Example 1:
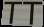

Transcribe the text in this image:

TT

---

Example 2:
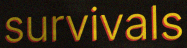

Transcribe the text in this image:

survivals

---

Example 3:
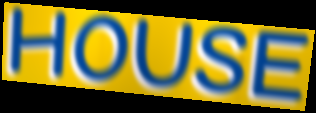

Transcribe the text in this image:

HOUSE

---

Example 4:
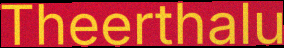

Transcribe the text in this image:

Theerthalu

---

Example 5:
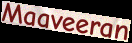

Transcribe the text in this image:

Maaveeran